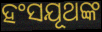
ହଂସଯୂଥଙ୍କ